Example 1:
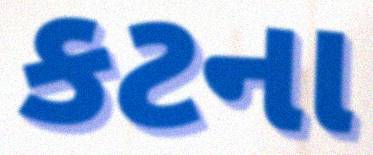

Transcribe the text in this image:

કટના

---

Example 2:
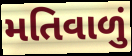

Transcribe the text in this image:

મતિવાળું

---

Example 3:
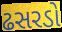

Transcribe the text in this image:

ઢસરડો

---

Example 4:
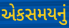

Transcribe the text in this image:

એકસમયનું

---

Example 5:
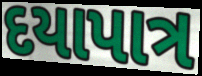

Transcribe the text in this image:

દયાપાત્ર